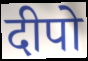
दीपो